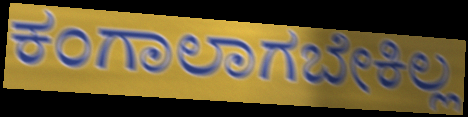
ಕಂಗಾಲಾಗಬೇಕಿಲ್ಲ